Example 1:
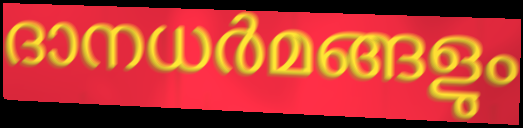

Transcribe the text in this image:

ദാനധർമങ്ങളും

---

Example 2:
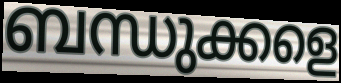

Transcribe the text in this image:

ബന്ധുക്കളെ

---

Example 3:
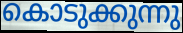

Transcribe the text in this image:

കൊടുക്കുന്നു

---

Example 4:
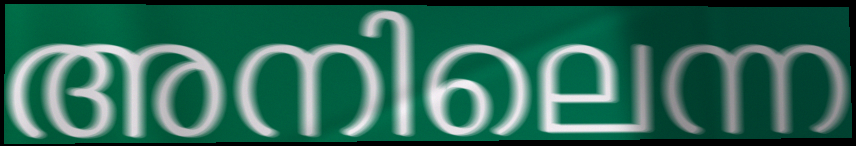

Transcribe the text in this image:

അനിലെന്ന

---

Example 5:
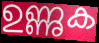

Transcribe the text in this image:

ഉണ്ണുക